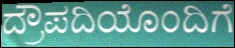
ದ್ರೌಪದಿಯೊಂದಿಗೆ